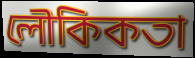
লৌকিকতা